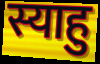
स्याहु